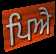
ਪਿਐ